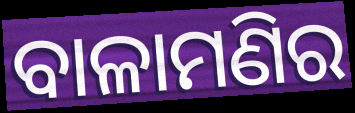
ବାଳାମଣିର